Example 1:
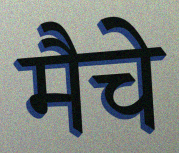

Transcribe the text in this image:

मैचे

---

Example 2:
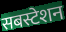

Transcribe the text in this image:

सबस्टेशन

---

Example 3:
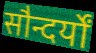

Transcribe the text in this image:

सौन्दर्यों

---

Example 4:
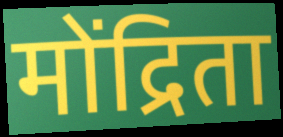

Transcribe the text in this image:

मोंद्रिता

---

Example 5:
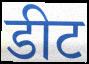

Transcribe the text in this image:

डीट